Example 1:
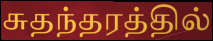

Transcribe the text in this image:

சுதந்தரத்தில்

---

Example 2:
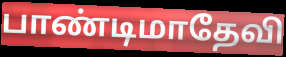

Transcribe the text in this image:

பாண்டிமாதேவி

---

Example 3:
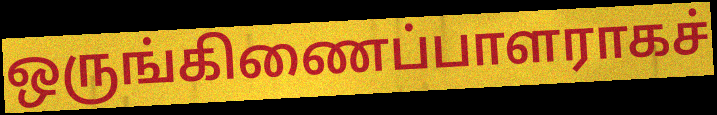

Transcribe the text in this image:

ஒருங்கிணைப்பாளராகச்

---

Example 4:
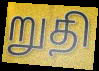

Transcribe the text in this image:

றுதி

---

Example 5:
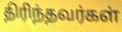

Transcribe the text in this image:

திரிந்தவர்கள்